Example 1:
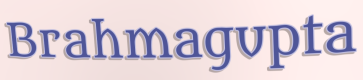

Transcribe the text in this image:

Brahmagupta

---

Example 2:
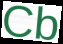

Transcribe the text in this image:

Cb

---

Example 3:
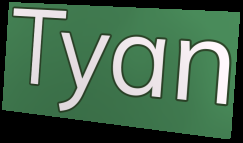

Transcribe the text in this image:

Tyan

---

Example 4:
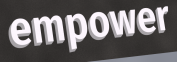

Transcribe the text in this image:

empower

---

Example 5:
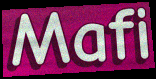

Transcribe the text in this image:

Mafi